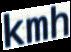
kmh